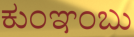
ಕುಂಞಂಬು